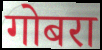
गोबरा